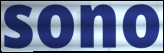
sono